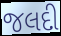
જલદી